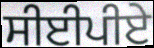
ਸੀਈਪੀਏ